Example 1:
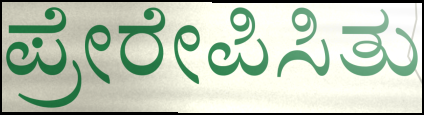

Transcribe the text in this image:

ಪ್ರೇರೇಪಿಸಿತು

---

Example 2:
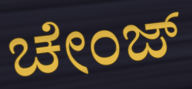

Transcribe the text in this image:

ಚೇಂಜ್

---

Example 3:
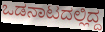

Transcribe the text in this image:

ಒಡನಾಟದಲ್ಲಿದ್ದ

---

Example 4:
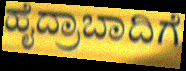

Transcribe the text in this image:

ಹೈದ್ರಾಬಾದಿಗೆ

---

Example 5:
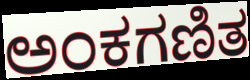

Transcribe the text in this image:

ಅಂಕಗಣಿತ